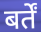
बर्तें